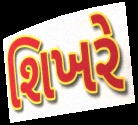
શિખરે